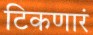
टिकणारं